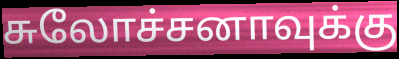
சுலோச்சனாவுக்கு